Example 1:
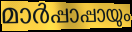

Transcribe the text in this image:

മാർപ്പാപ്പായും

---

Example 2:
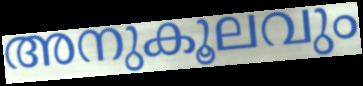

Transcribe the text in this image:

അനുകൂലവും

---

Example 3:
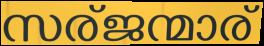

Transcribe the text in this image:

സര്ജന്മാര്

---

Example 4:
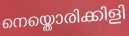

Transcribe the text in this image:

നെയ്തൊരിക്കിളി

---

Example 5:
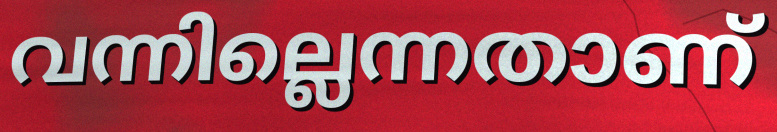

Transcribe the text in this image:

വന്നില്ലെന്നതാണ്